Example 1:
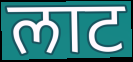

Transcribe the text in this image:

लाट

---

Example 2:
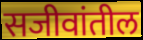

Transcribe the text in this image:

सजीवांतील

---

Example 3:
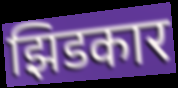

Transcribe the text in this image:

झिडकार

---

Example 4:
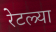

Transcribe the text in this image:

रेटल्या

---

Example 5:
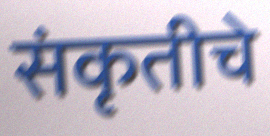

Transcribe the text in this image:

संकृतीचे